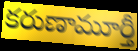
కరుణామూర్తీ